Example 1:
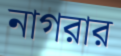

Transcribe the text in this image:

নাগরার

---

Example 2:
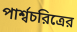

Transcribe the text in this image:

পার্শ্বচরিত্রের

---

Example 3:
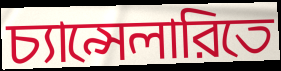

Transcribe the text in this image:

চ্যান্সেলারিতে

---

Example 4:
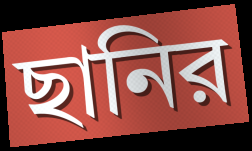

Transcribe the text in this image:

ছানির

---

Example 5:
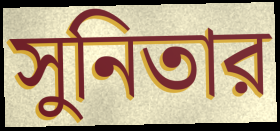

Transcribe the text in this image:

সুনিতার